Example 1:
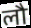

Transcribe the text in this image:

लौ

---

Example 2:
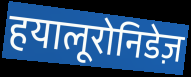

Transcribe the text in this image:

हयालूरोनिडेज़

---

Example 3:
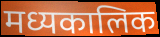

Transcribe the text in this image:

मध्यकालिक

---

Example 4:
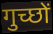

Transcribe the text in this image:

गुच्छों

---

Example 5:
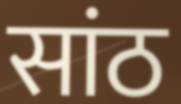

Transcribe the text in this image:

सांठ